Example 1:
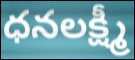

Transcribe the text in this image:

ధనలక్ష్మీ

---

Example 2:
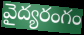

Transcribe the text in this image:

వైద్యరంగం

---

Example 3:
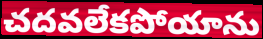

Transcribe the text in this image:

చదవలేకపోయాను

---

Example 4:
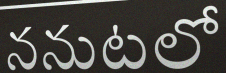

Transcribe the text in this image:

ననుటలో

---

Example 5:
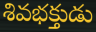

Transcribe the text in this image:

శివభక్తుడు